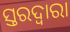
ସ୍ତରଦ୍ୱାରା